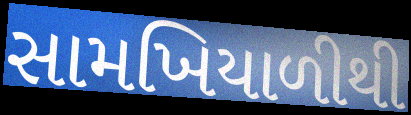
સામખિયાળીથી